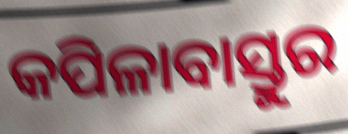
କପିଳାବାସ୍ତୁର